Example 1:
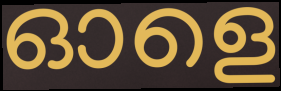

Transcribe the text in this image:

ഓളെ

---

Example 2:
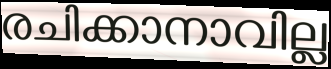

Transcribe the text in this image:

രചിക്കാനാവില്ല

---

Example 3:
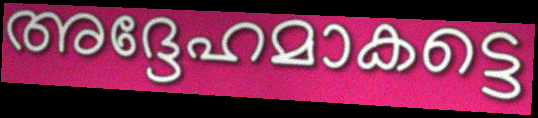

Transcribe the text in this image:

അദ്ദേഹമാകട്ടെ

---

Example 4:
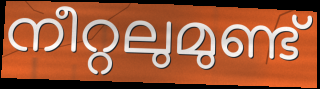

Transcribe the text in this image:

നീറ്റലുമുണ്ട്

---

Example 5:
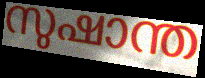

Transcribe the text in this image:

സുഷാന്ത